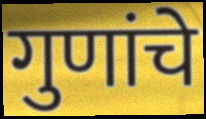
गुणांचे